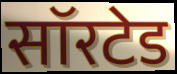
सॉरटेड